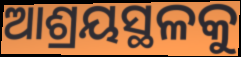
ଆଶ୍ରୟସ୍ଥଳକୁ